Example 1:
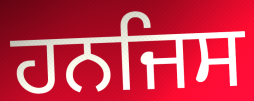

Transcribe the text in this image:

ਹਨਜਿਸ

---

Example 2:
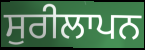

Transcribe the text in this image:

ਸੁਰੀਲਾਪਨ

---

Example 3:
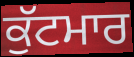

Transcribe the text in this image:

ਕੁੱਟਮਾਰ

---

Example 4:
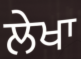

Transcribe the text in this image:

ਲੇਖਾ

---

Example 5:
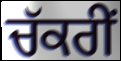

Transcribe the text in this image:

ਚੱਕਰੀਂ